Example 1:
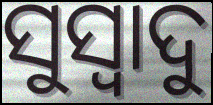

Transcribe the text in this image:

ସୁସ୍ଵାଦୁ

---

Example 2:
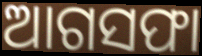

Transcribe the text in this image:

ଆଗସଫା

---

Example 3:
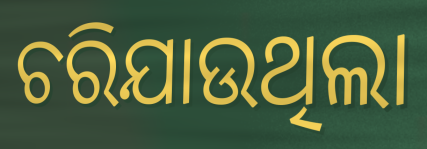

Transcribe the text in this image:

ଚରିଯାଉଥିଲା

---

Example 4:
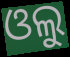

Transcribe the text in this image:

ଓଲୁ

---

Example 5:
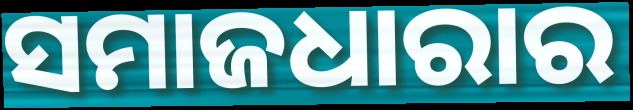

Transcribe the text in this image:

ସମାଜଧାରାର